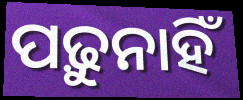
ପଢ଼ୁନାହିଁ